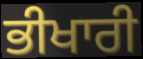
ਭੀਖਾਰੀ